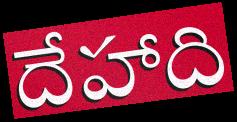
దేహాది